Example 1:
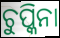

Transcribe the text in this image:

ଚୁପ୍କିନା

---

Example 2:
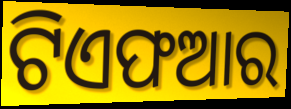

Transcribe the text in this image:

ଟିଏଫଆର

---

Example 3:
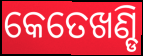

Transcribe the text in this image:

କେତେଖଣ୍ଡି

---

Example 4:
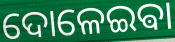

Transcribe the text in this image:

ଦୋଳେଇଵା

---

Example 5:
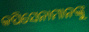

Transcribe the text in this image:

କପିସେନାମାନଙ୍କୁ